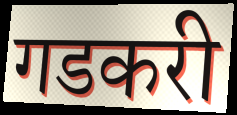
गडकरी